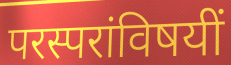
परस्परांविषयीं